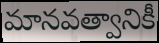
మానవత్వానికీ